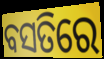
ବସତିରେ